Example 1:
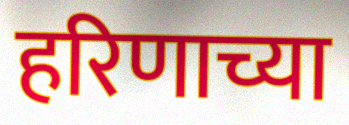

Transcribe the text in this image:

हरिणाच्या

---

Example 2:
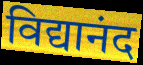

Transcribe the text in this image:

विद्यानंद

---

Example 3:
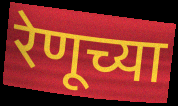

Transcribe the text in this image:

रेणूच्या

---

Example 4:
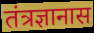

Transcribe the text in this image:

तंत्रज्ञानास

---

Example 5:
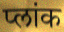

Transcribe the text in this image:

प्लांक